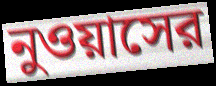
নুওয়াসের